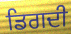
ਡਿਗਦੀ